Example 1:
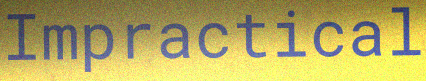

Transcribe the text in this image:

Impractical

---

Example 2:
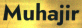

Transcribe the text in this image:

Muhajir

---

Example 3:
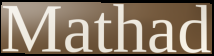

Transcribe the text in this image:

Mathad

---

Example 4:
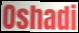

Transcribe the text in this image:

Oshadi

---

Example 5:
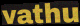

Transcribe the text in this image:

vathu